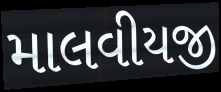
માલવીયજી